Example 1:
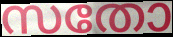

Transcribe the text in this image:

സതോ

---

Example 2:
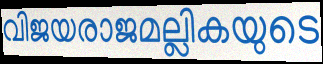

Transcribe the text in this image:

വിജയരാജമല്ലികയുടെ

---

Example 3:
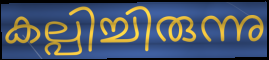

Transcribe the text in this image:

കല്പിച്ചിരുന്നു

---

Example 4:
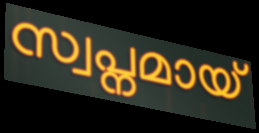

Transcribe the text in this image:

സ്വപ്നമായ്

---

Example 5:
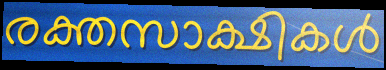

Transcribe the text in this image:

രക്തസാക്ഷികൾ